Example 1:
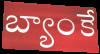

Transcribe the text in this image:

బ్యాంకే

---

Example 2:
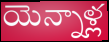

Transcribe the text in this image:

యెన్నాళ్ల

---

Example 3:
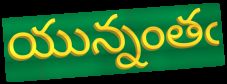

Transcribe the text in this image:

యున్నంతఁ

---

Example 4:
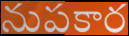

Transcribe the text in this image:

నుపకార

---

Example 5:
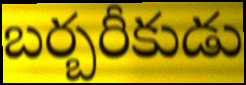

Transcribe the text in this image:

బర్బరీకుడు